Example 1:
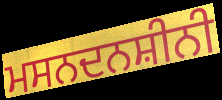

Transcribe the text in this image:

ਮਸਨਦਨਸ਼ੀਨੀ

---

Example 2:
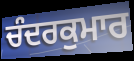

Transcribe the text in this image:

ਚੰਦਰਕੁਮਾਰ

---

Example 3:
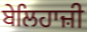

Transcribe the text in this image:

ਬੇਲਿਹਾਜ਼ੀ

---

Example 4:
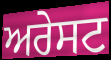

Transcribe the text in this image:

ਅਰੇਸਟ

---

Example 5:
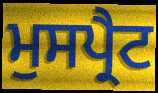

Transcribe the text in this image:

ਮੁਸਪ੍ਰੈਟ